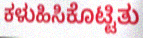
ಕಳುಹಿಸಿಕೊಟ್ಟಿತು